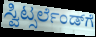
ಸ್ವಿಟ್ಸರ್ಲೆಂಡ್‌ಗೆ